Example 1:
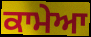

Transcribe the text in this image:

ਕਾਮੇਆ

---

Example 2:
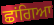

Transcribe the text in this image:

ਛਾਂਗਿਆ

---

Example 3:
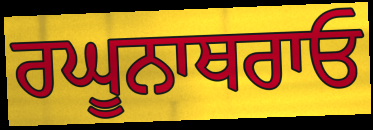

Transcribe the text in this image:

ਰਘੂਨਾਥਰਾਓ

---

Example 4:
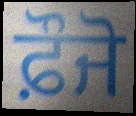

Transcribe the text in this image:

ਫ਼ੌਜੋ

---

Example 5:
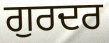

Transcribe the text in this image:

ਗੁਰਦਰ